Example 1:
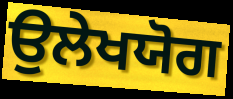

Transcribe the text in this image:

ਉਲੇਖਯੋਗ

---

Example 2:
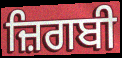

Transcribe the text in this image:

ਜ਼ਿਗਬੀ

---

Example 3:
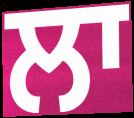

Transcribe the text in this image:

ਲਾ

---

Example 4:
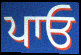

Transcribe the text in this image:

ਪਾਓ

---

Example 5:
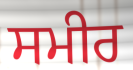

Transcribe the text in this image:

ਸਮੀਰ